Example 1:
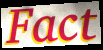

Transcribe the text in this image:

Fact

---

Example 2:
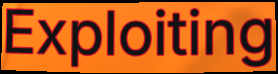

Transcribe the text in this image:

Exploiting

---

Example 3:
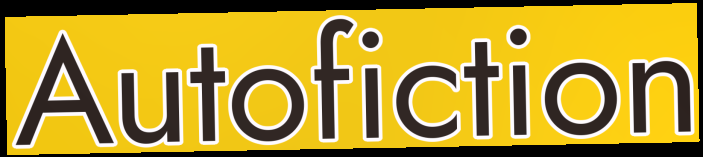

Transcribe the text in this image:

Autofiction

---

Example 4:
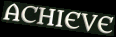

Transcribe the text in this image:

ACHIEVE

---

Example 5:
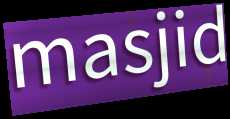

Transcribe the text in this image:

masjid